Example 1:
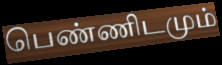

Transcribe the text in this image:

பெண்ணிடமும்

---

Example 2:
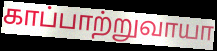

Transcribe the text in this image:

காப்பாற்றுவாயா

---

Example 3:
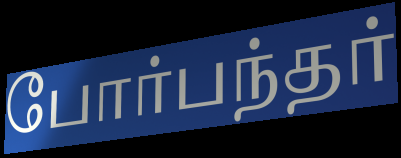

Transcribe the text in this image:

போர்பந்தர்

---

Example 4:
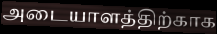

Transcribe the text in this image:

அடையாளத்திற்காக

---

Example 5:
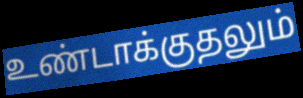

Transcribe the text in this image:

உண்டாக்குதலும்